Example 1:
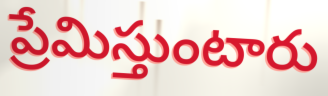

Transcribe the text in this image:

ప్రేమిస్తుంటారు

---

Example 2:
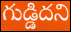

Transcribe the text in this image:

గుడ్డిదని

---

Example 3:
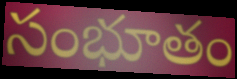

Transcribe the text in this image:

సంభూతం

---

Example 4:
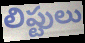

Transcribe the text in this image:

లిప్టులు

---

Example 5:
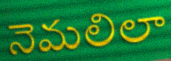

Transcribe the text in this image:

నెమలిలా